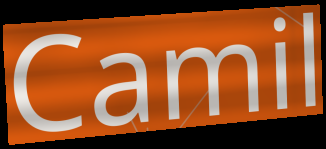
Camil